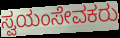
ಸ್ವಯಂಸೇವಕರು